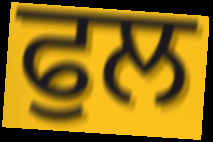
ਫੁਲ